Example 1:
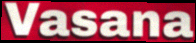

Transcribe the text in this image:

Vasana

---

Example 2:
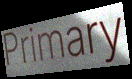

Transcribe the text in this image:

Primary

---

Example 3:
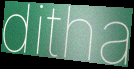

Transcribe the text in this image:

ditha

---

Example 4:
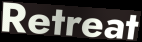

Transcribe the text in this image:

Retreat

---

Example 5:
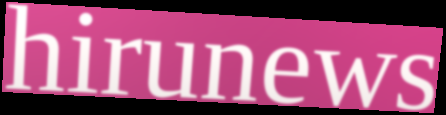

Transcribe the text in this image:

hirunews